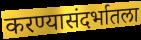
करण्यासंदर्भातला